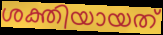
ശക്തിയായത്